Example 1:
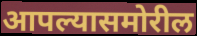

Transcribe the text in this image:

आपल्यासमोरील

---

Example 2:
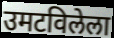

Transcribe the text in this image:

उमटविलेला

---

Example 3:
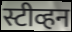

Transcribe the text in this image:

स्टीव्हन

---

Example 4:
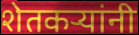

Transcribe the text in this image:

शेतकर्‍यांनी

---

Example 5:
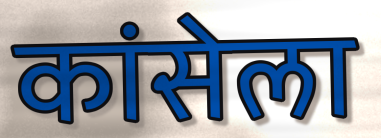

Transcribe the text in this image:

कांसेला